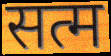
सत्म